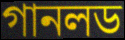
গানলড